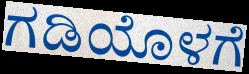
ಗಡಿಯೊಳಗೆ